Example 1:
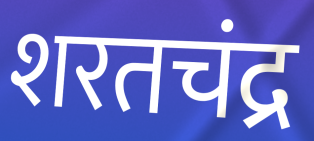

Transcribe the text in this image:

शरतचंद्र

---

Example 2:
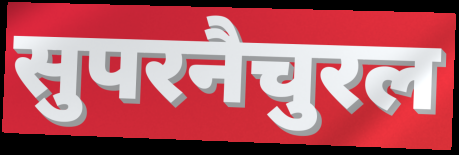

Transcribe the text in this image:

सुपरनैचुरल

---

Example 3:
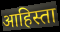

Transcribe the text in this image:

आहिस्ता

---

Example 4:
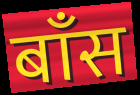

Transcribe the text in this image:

बॉंस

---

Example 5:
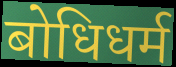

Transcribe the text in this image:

बोधिधर्म